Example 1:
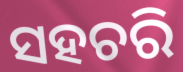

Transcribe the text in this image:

ସହଚରି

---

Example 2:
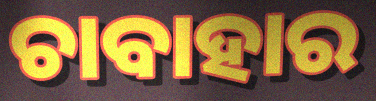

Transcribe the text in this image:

ଚାବାହାର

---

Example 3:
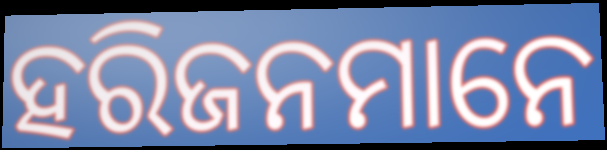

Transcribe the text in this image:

ହରିଜନମାନେ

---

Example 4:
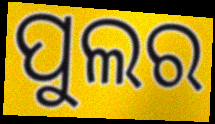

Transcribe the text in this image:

ପୁଲର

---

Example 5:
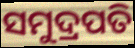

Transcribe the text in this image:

ସମୁଦ୍ରପତି